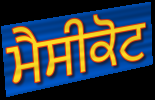
ਮੈਸੀਕੋਟ